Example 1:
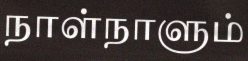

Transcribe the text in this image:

நாள்நாளும்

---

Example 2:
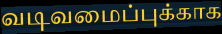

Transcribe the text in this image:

வடிவமைப்புக்காக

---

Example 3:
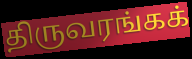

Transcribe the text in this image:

திருவரங்கக்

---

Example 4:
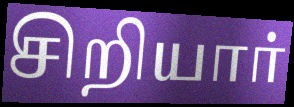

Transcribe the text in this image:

சிறியார்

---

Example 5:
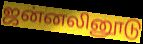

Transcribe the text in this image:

ஜன்னலினூடு